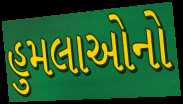
હુમલાઓનો